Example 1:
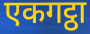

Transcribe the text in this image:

एकगट्ठा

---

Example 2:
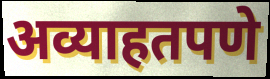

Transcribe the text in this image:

अव्याहतपणे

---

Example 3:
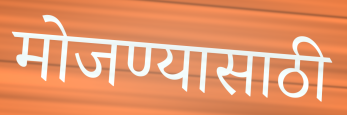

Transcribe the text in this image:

मोजण्यासाठी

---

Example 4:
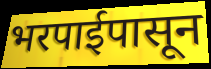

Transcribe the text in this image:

भरपाईपासून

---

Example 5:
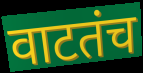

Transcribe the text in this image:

वाटतंच